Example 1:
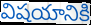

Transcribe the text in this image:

విషయానికి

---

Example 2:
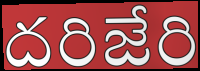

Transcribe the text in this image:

దరిజేరి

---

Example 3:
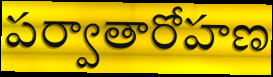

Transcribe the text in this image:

పర్వాతారోహణ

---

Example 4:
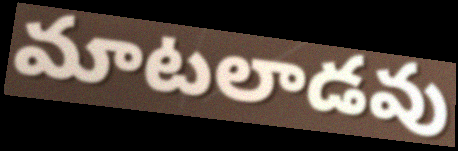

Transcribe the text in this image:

మాటలాడవు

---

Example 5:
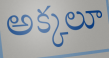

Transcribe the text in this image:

అక్కలూ